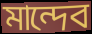
মান্দেব